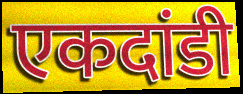
एकदांडी